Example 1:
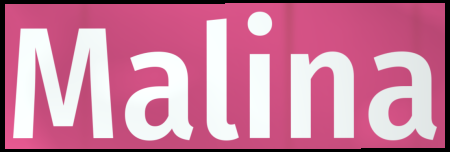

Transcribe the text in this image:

Malina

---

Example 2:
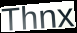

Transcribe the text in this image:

Thnx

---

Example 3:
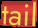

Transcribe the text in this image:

tail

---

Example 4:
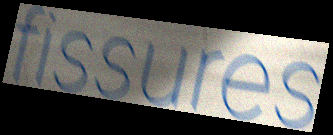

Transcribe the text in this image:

fissures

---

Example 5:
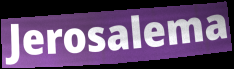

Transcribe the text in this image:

Jerosalema